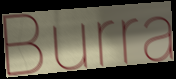
Burra